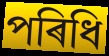
পৰিধি